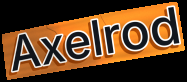
Axelrod